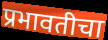
प्रभावतीचा